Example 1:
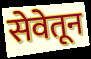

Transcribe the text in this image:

सेवेतून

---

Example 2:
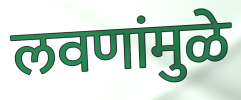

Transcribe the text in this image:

लवणांमुळे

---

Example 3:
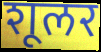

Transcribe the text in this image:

शूलर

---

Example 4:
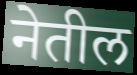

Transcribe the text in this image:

नेतील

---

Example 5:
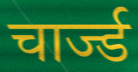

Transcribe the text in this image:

चार्ज्ड